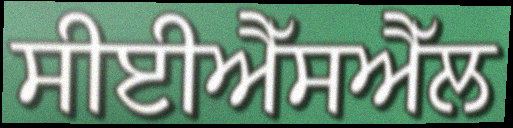
ਸੀਈਐੱਸਐੱਲ